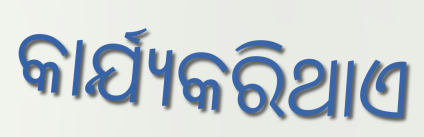
କାର୍ଯ୍ୟକରିଥାଏ